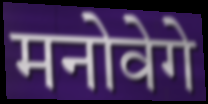
मनोवेगे